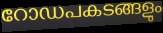
റോഡപകടങ്ങളും